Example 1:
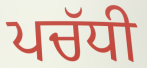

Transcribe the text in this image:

ਪਚੱਧੀ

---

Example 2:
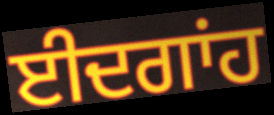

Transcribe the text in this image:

ਈਦਗਾਂਹ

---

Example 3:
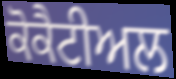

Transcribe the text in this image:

ਕੋਕੈਟੀਅਲ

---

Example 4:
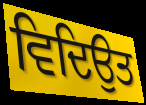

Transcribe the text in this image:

ਵਿਦਿਉਤ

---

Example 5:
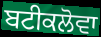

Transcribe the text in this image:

ਬਟੀਕਲੋਵਾ